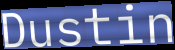
Dustin